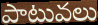
పాటువలు